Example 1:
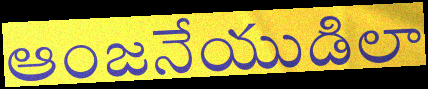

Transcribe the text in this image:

ఆంజనేయుడిలా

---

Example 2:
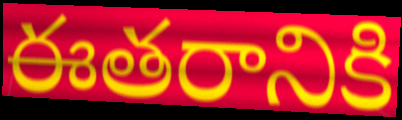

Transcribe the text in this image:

ఈతరానికి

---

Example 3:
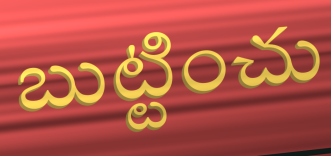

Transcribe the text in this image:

బుట్టించు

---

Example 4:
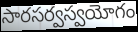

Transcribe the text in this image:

సారసర్వస్వయోగం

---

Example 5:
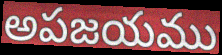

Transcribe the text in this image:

అపజయము